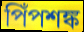
পিঁপশঙ্ক